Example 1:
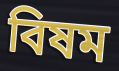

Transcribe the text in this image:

বিষম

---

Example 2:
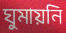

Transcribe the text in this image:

ঘুমায়নি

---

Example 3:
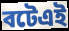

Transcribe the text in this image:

বটেএই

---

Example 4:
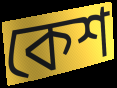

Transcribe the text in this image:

কেশ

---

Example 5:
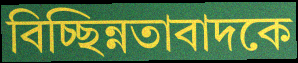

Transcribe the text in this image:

বিচ্ছিন্নতাবাদকে